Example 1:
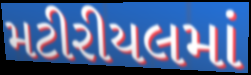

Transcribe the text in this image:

મટીરીયલમાં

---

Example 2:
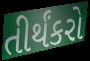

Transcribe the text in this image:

તીર્થંકરો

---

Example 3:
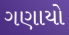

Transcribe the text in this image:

ગણાયો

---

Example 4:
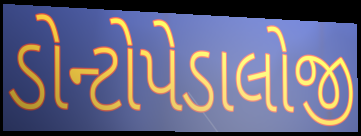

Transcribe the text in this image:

ડોન્ટોપેડાલોજી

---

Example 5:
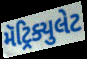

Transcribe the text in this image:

મૅટ્રિક્યુલેટ